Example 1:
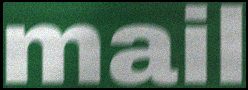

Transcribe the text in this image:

mail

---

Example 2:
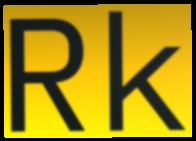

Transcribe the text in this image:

Rk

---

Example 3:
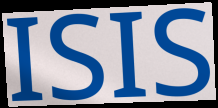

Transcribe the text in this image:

ISIS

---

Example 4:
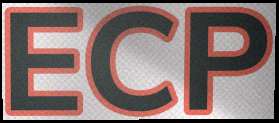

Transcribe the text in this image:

ECP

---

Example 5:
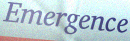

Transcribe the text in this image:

Emergence